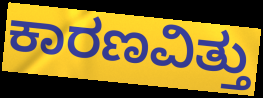
ಕಾರಣವಿತ್ತು